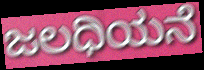
ಜಲಧಿಯನೆ